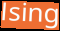
Ising